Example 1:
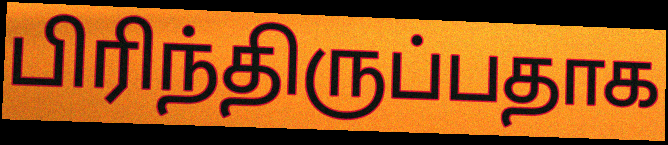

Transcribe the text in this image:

பிரிந்திருப்பதாக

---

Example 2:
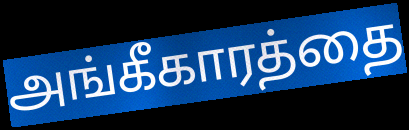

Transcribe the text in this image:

அங்கீகாரத்தை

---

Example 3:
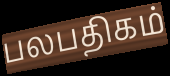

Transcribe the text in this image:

பலபதிகம்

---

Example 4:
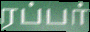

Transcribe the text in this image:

ரப்பர்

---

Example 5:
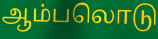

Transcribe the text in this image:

ஆம்பலொடு